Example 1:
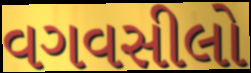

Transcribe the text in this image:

વગવસીલો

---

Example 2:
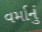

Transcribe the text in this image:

વર્માનું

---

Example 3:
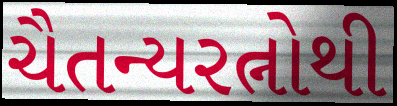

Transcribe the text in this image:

ચૈતન્યરત્નોથી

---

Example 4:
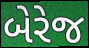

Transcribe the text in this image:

બેરેજ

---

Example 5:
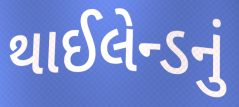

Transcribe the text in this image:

થાઈલેન્ડનું